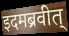
इदमब्रवीत्